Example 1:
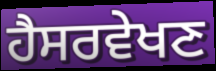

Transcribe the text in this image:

ਹੈਸਰਵੇਖਣ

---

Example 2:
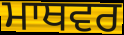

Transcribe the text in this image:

ਮਾਥਵਰ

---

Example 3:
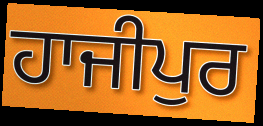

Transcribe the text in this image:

ਹਾਜੀਪੁਰ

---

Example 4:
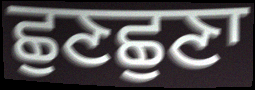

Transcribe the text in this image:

ਛੁਣਛੁਣਾ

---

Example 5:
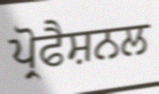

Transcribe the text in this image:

ਪ੍ਰੋਫੈਸ਼ਨਲ